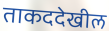
ताकददेखील